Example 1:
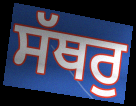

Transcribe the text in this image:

ਸੱਥਰੁ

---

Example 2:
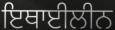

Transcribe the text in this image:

ਇਥਾਈਲੀਨ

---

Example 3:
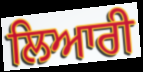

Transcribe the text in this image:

ਲਿਆਰੀ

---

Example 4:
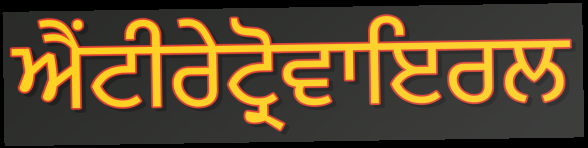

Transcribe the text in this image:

ਐਂਟੀਰੇਟ੍ਰੋਵਾਇਰਲ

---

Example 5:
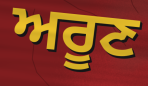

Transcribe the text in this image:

ਅਰੂਣ